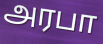
அரபா